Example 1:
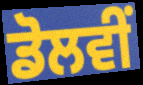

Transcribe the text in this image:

ਡੋਲਵੀਂ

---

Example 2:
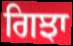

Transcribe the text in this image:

ਗਿਝਾ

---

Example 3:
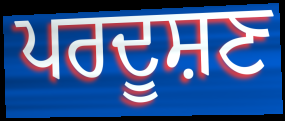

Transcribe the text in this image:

ਪਰਦੂਸ਼ਣ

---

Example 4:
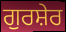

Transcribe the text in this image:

ਗੁਰਸ਼ੇਰ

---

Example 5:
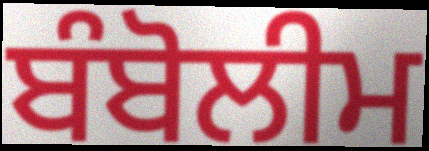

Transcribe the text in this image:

ਬੰਬੋਲੀਮ